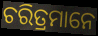
ଚରିତ୍ରମାନେ